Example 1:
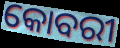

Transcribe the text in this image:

କୋବରୀ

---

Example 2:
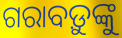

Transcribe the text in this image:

ଗରାବଡ଼ୁଙ୍କୁ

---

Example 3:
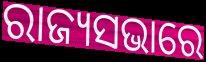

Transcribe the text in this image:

ରାଜ୍ୟସଭାରେ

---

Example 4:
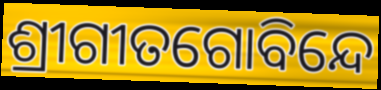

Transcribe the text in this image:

ଶ୍ରୀଗୀତଗୋବିନ୍ଦେ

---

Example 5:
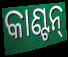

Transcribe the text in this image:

କାଣ୍ଟନ୍